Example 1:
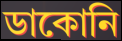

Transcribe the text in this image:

ডাকোনি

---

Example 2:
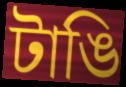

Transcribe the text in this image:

টাঙি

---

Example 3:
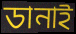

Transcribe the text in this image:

ডানাই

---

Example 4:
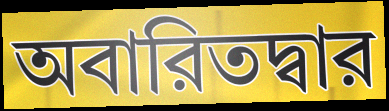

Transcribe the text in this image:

অবারিতদ্বার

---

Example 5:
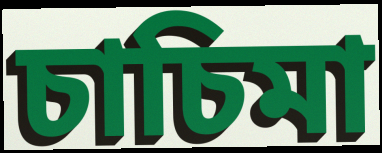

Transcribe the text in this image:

চাচিমা